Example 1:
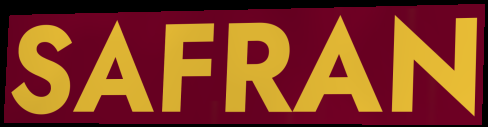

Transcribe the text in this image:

SAFRAN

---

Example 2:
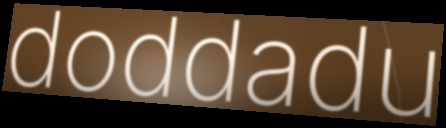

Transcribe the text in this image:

doddadu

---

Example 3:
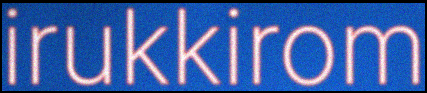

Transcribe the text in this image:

irukkirom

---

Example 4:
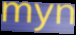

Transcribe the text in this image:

myn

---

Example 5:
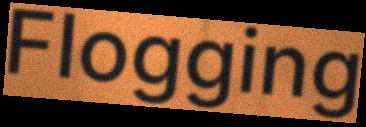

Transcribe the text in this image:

Flogging